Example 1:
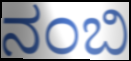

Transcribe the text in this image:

ನಂಬಿ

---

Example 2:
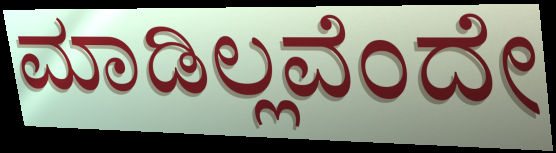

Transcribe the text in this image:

ಮಾಡಿಲ್ಲವೆಂದೇ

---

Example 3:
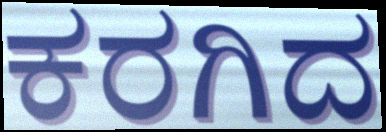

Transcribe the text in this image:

ಕರಗಿದ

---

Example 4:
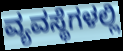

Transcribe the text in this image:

ವ್ಯವಸ್ಥೆಗಳಲ್ಲಿ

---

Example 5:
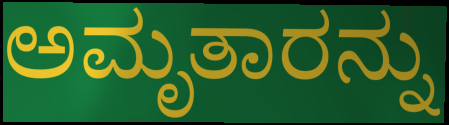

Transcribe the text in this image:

ಅಮೃತಾರನ್ನು